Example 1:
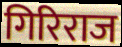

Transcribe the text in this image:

गिरिराज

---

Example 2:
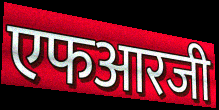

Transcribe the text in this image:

एफआरजी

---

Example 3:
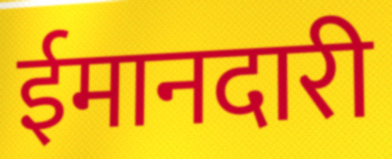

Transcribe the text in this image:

ईमानदारी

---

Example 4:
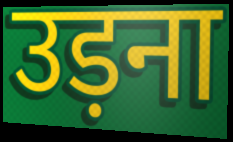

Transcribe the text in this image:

उड़ना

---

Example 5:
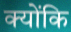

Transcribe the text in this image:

क्योंकि